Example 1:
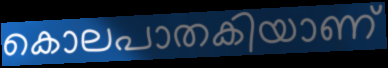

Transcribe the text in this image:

കൊലപാതകിയാണ്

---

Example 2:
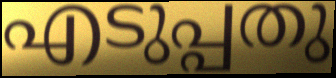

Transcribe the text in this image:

എടുപ്പതു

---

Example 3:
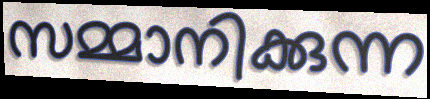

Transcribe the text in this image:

സമ്മാനിക്കുന്ന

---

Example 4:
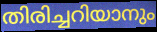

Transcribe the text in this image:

തിരിച്ചറിയാനും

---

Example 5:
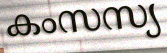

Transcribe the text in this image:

കംസസ്യ